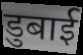
डुबाई